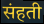
संहती